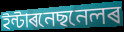
ইন্টাৰনেছনেলৰ